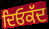
ਦਿਓਕੱਦ